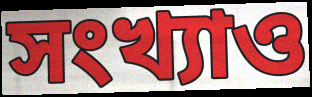
সংখ্যাও